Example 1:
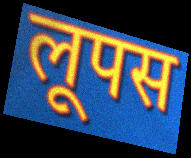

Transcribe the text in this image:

लूपस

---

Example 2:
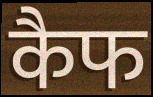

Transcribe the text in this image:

कैफ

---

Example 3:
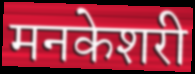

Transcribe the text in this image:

मनकेशरी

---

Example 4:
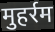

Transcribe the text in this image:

मुहर्रम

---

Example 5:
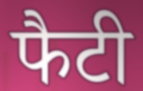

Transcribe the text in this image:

फैटी